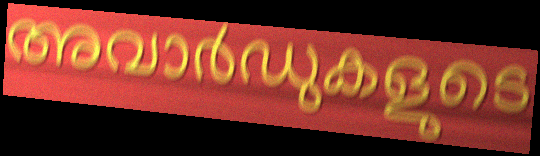
അവാർഡുകളുടെ